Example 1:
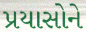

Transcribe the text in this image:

પ્રયાસોને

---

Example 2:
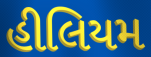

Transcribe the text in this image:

હીલિયમ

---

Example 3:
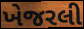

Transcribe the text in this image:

ખેજરલી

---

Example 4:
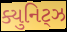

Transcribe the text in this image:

ક્યુનિટ્ઝ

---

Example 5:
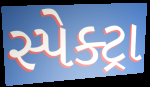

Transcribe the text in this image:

સ્પેક્ટ્રા